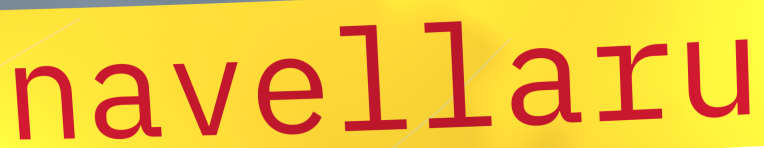
navellaru